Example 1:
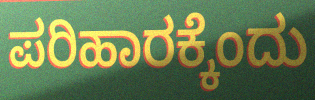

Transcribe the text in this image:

ಪರಿಹಾರಕ್ಕೆಂದು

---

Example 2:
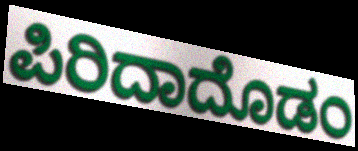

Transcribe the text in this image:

ಪಿರಿದಾದೊಡಂ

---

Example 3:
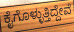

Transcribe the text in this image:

ಕೈಗೊಳ್ಳುತ್ತಿದ್ದೇವೆ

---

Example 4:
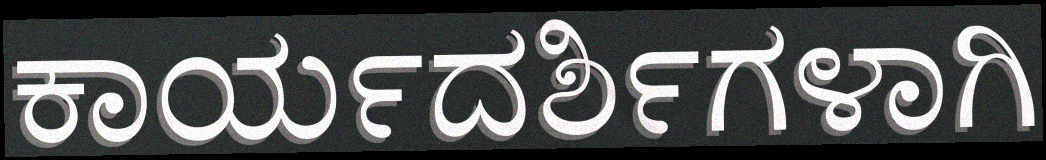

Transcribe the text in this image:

ಕಾರ್ಯದರ್ಶಿಗಳಾಗಿ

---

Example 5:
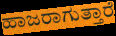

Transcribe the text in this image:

ಹಾಜರಾಗುತ್ತಾರೆ